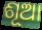
ଶୂଆ